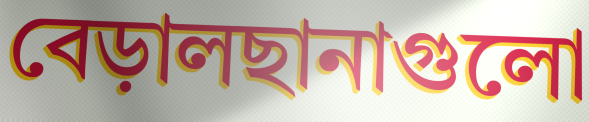
বেড়ালছানাগুলো